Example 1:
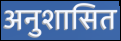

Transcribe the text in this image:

अनुशासित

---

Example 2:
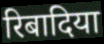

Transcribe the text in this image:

रिबादिया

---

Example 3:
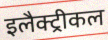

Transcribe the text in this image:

इलैक्ट्रीकल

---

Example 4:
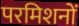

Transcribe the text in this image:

परमिशनों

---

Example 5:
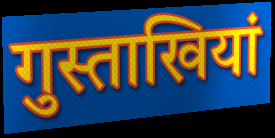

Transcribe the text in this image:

गुस्ताखियां